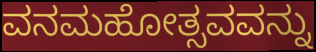
ವನಮಹೋತ್ಸವವನ್ನು